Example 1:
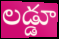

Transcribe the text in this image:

లడ్డూ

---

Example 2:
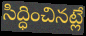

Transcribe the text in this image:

సిద్ధించినట్లే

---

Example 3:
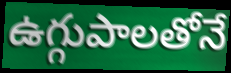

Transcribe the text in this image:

ఉగ్గుపాలతోనే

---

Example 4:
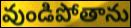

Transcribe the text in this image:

వుండిపోతాను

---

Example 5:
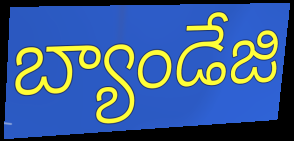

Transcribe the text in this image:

బ్యాండేజి